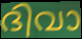
ദിവാ